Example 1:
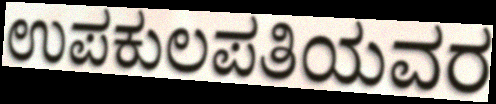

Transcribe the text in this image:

ಉಪಕುಲಪತಿಯವರ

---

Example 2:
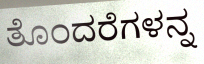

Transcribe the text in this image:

ತೊಂದರೆಗಳನ್ನ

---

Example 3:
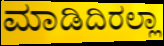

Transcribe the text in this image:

ಮಾಡಿದಿರಲ್ಲಾ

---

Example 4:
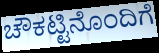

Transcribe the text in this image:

ಚೌಕಟ್ಟಿನೊಂದಿಗೆ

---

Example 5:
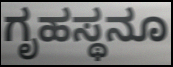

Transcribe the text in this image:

ಗೃಹಸ್ಥನೂ